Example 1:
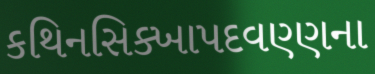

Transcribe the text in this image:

કથિનસિક્ખાપદવણ્ણના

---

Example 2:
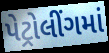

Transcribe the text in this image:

પેટ્રોલીંગમાં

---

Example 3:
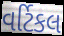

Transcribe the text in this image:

વર્ટિકલ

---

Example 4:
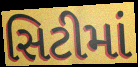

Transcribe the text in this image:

સિટીમાં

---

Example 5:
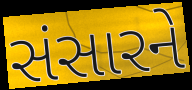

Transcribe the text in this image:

સંસારને